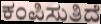
ಕಂಪಿಸುತಿದೆ